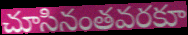
చూసినంతవరకూ